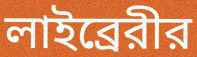
লাইব্রেরীর